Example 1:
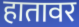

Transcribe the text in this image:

हातावर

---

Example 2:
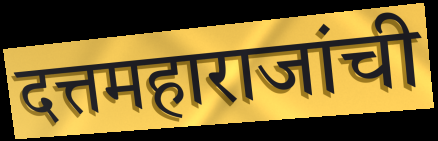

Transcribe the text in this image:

दत्तमहाराजांची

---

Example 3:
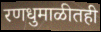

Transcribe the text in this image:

रणधुमाळीतही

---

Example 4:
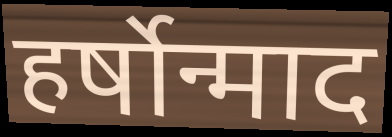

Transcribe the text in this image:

हर्षोन्माद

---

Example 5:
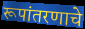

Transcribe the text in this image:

रूपांतरणाचे